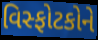
વિસ્ફોટકોને